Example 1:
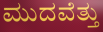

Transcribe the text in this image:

ಮುದವೆತ್ತು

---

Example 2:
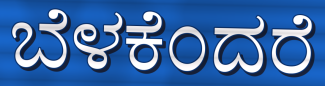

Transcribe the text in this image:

ಬೆಳಕೆಂದರೆ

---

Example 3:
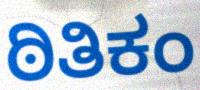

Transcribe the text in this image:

ಠಿತಿಕಂ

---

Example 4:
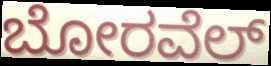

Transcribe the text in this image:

ಬೋರವೆಲ್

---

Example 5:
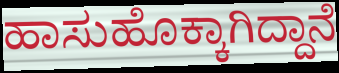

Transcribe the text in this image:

ಹಾಸುಹೊಕ್ಕಾಗಿದ್ದಾನೆ